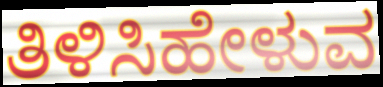
ತಿಳಿಸಿಹೇಳುವ